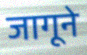
जागूने